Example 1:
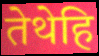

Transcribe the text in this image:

तेथेहि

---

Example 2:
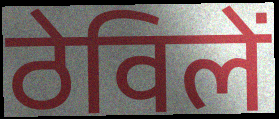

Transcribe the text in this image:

ठेविलें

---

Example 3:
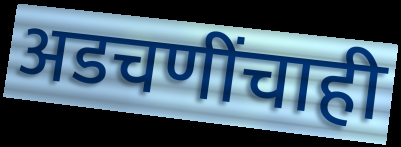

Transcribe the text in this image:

अडचणींचाही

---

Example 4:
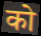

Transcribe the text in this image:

को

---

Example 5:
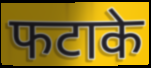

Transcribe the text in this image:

फटाके